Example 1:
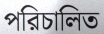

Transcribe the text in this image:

পরিচালিত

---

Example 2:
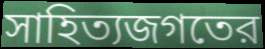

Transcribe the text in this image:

সাহিত্যজগতের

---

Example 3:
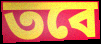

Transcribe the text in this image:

তবে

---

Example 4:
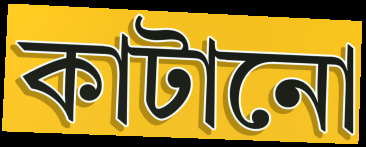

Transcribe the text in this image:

কাটানো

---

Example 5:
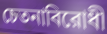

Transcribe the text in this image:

চেতনাবিরোধী